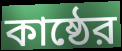
কাষ্ঠের